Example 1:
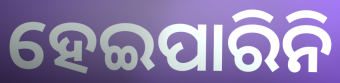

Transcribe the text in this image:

ହେଇପାରିନି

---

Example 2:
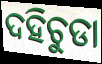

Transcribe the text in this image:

ଦହିଚୁଡା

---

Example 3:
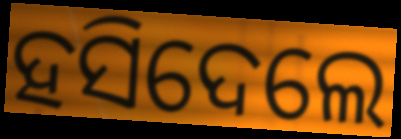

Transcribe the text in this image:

ହସିଦେଲେ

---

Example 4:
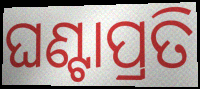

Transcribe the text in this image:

ଘଣ୍ଟାପ୍ରତି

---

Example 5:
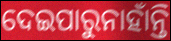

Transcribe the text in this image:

ଦେଇପାରୁନାହାଁନ୍ତି